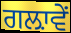
ਗਲ਼ਾਵੇਂ